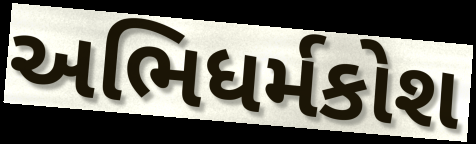
અભિધર્મકોશ